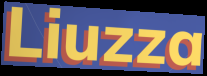
Liuzza